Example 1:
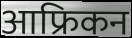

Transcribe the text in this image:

आफ्रिकन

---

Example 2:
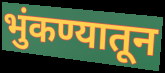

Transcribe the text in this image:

भुंकण्यातून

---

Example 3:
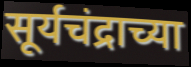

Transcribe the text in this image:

सूर्यचंद्राच्या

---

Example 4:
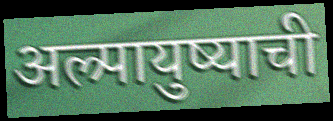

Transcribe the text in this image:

अल्पायुष्याची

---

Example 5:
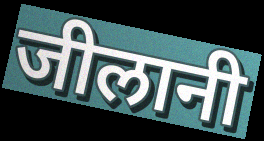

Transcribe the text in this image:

जीलानी